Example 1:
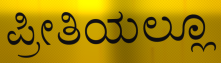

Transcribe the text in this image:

ಪ್ರೀತಿಯಲ್ಲೂ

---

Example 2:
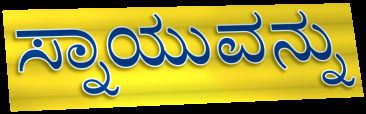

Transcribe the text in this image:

ಸ್ನಾಯುವನ್ನು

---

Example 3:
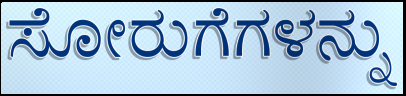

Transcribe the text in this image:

ಸೋರುಗೆಗಳನ್ನು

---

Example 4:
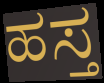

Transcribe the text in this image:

ಹಸ್ತ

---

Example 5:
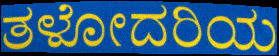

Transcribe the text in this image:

ತಳೋದರಿಯ